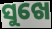
ସୁଖେ